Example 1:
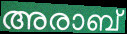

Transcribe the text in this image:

അരാബ്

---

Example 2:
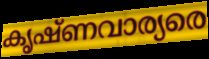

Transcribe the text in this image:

കൃഷ്ണവാര്യരെ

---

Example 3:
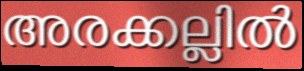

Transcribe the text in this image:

അരക്കല്ലിൽ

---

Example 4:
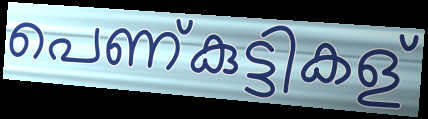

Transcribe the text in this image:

പെണ്കുട്ടികള്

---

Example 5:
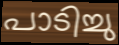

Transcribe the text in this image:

പാടിച്ചു